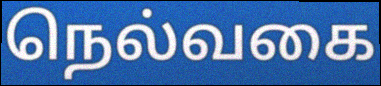
நெல்வகை